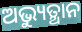
ଅଭ୍ୟୁତ୍ଥାନ